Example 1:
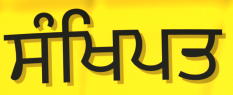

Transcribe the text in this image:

ਸੰਖਿਪਤ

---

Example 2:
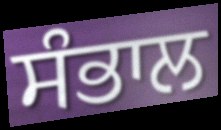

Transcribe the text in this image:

ਸੰਭਾਲ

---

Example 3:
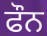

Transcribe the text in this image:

ਫੌਨ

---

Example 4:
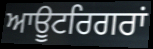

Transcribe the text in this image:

ਆਊਟਰਿਗਰਾਂ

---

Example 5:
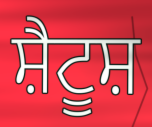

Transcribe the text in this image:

ਸ਼ੈਟੂਸ਼